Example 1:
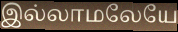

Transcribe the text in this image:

இல்லாமலேயே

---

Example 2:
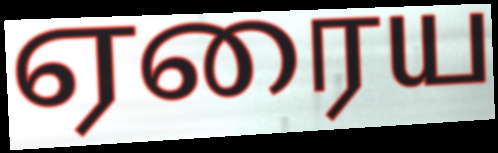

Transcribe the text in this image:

ஏரைய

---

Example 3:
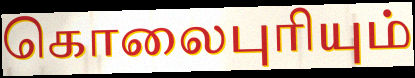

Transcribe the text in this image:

கொலைபுரியும்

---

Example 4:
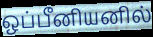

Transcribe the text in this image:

ஒப்பீனியனில்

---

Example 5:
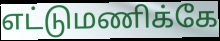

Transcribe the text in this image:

எட்டுமணிக்கே